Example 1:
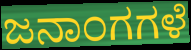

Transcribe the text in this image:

ಜನಾಂಗಗಳೆ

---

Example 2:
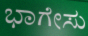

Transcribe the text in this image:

ಭಾಗೇಸು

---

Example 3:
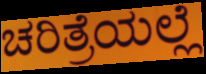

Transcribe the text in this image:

ಚರಿತ್ರೆಯಲ್ಲೆ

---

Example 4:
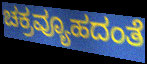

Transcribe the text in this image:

ಚಕ್ರವ್ಯೂಹದಂತೆ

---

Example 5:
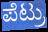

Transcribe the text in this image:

ಪೆಟ್ರು